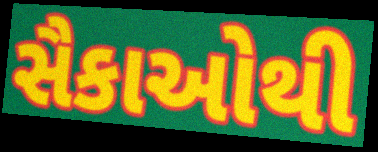
સૈકાઓથી